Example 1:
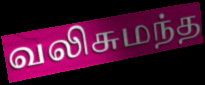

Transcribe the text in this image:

வலிசுமந்த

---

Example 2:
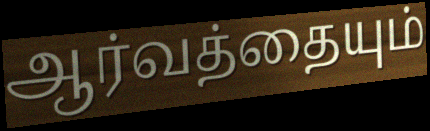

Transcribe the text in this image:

ஆர்வத்தையும்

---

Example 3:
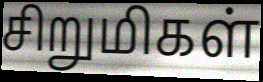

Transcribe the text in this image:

சிறுமிகள்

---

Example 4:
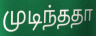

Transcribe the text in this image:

முடிந்ததா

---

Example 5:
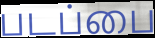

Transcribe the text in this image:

படப்பை